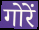
गोरें